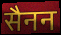
सैनन